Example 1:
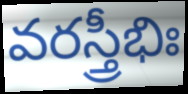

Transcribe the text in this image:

వరస్త్రీభిః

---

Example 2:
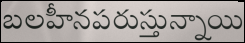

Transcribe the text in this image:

బలహీనపరుస్తున్నాయి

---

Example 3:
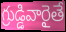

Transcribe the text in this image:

గ్రుడ్డివారైతే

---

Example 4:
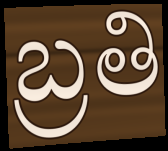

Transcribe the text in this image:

బ్రతి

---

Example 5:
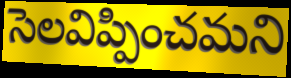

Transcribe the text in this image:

సెలవిప్పించమని